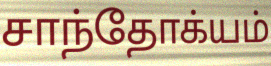
சாந்தோக்யம்